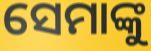
ସେମାଙ୍କୁ